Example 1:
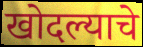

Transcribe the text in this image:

खोदल्याचे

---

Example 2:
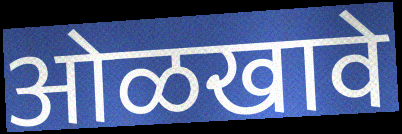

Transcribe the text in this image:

ओळखावे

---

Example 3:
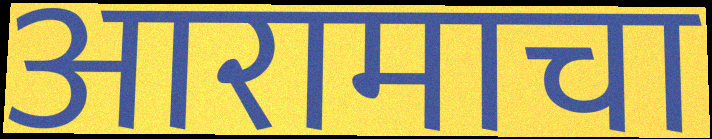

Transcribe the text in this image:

आरामाचा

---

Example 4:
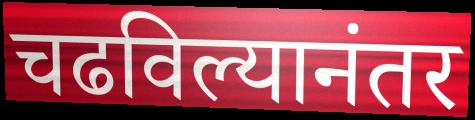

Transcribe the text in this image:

चढविल्यानंतर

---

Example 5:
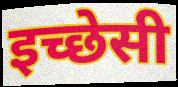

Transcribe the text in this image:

इच्छेसी